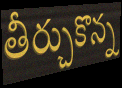
తీర్చుకొన్న